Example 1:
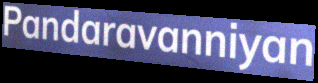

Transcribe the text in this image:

Pandaravanniyan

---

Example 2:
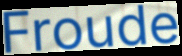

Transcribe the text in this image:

Froude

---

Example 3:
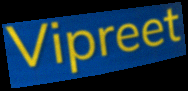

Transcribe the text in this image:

Vipreet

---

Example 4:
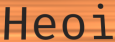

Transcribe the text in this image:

Heoi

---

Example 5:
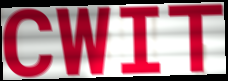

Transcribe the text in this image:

CWIT